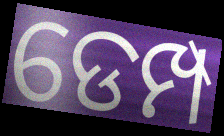
ଡେମ୍ପ